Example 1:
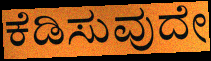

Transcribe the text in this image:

ಕೆಡಿಸುವುದೇ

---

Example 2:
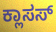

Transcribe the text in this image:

ಕ್ಲಾಸಸ್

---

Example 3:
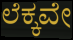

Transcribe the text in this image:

ಲೆಕ್ಕವೇ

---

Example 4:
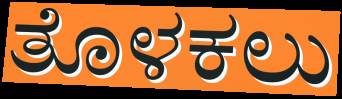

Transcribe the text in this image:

ತೊಳಕಲು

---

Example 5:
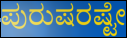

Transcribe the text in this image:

ಪುರುಷರಷ್ಟೇ